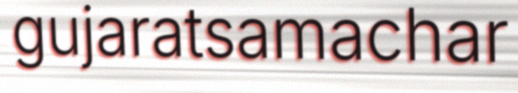
gujaratsamachar